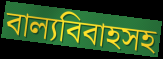
বাল্যবিবাহসহ